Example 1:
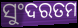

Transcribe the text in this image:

ସୁଂଦରତମ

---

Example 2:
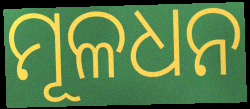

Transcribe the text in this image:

ମୂଳଧନ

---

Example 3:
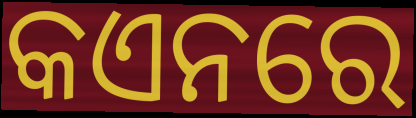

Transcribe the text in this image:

କଏନରେ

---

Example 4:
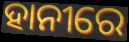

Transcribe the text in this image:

ହାନୀରେ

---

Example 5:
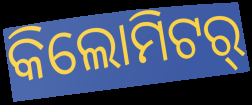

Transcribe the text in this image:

କିଲୋମିଟର୍